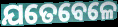
ଯତେବେଳେ